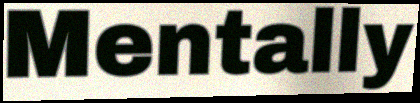
Mentally